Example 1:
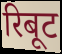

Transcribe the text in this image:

रिबूट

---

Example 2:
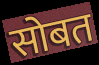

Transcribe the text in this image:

सोबत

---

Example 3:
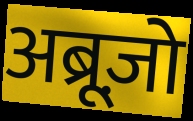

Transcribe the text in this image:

अब्रूज़ो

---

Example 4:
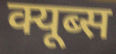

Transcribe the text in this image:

क्यूब्स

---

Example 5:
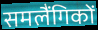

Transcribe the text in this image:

समलैंगिकों